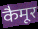
कैमूर